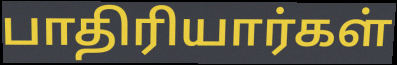
பாதிரியார்கள்